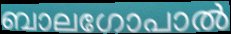
ബാലഗോപാൽ